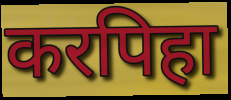
करपिहा